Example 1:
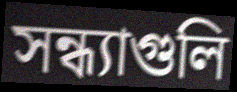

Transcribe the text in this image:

সন্ধ্যাগুলি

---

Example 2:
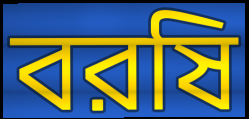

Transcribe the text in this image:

বরষি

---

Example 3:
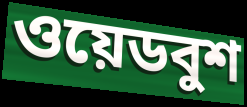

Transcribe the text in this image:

ওয়েডবুশ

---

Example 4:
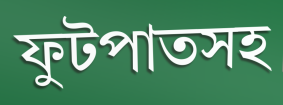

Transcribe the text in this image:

ফুটপাতসহ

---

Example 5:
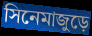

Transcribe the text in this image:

সিনেমাজুড়ে